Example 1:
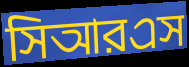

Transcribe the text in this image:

সিআরএস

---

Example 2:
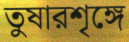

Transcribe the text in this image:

তুষারশৃঙ্গে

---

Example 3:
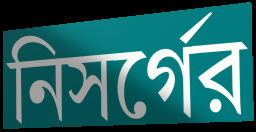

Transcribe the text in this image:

নিসর্গের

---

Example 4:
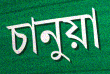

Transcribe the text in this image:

চানুয়া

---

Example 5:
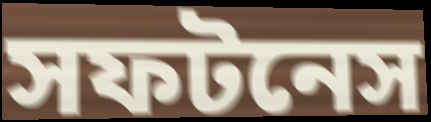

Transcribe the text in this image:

সফটনেস